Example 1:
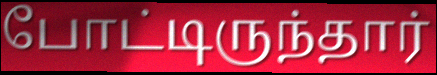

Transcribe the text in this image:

போட்டிருந்தார்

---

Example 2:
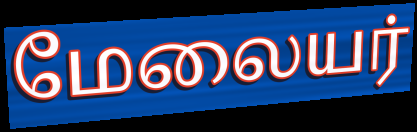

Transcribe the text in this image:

மேலையர்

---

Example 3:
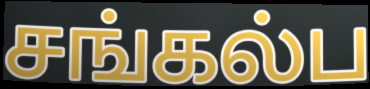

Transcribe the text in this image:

சங்கல்ப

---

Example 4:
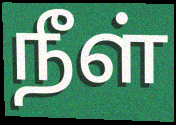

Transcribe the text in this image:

நீள்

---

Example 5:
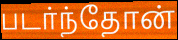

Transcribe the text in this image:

படர்ந்தோன்